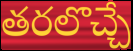
తరలొచ్చే